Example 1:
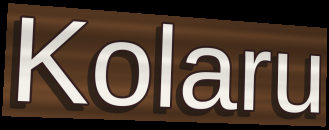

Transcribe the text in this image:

Kolaru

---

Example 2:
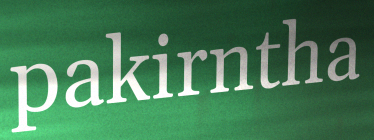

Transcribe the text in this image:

pakirntha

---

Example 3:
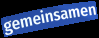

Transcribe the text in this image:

gemeinsamen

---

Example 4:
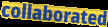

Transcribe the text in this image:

collaborated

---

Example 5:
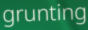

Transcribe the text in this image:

grunting